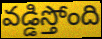
వడ్డిస్తోంది